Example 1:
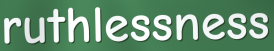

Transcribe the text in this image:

ruthlessness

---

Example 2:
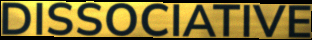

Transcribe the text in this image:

DISSOCIATIVE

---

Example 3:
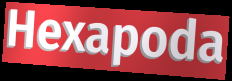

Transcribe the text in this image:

Hexapoda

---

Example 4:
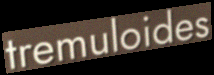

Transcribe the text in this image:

tremuloides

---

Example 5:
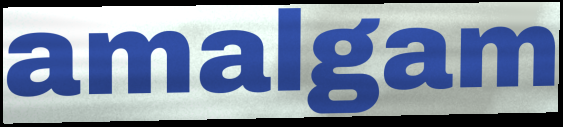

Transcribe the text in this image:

amalgam